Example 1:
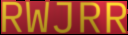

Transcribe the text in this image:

RWJRR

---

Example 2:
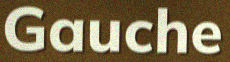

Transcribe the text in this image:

Gauche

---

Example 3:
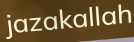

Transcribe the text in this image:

jazakallah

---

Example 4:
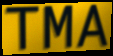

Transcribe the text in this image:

TMA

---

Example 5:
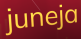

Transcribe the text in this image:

juneja